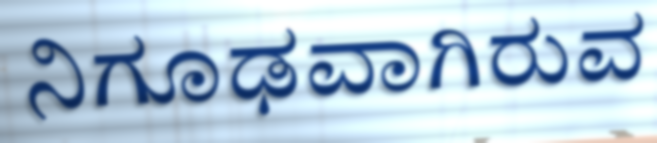
ನಿಗೂಢವಾಗಿರುವ